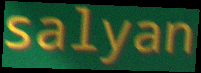
salyan